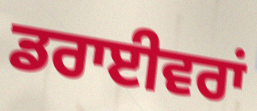
ਡਰਾਈਵਰਾਂ